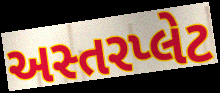
અસ્તરપ્લેટ